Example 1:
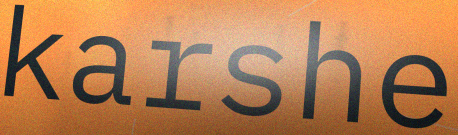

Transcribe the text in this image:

karshe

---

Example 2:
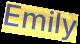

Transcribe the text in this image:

Emily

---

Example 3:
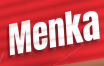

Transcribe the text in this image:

Menka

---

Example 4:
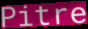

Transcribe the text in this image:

Pitre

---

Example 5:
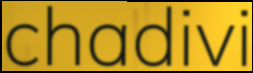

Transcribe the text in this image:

chadivi